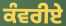
ਕੰਵਰੀਏ